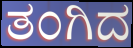
ತಂಗಿದ